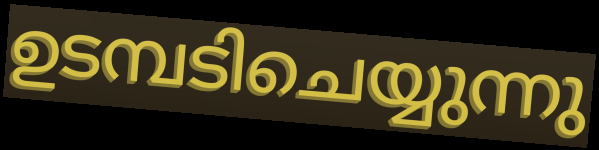
ഉടമ്പടിചെയ്യുന്നു